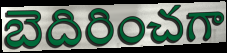
బెదిరించగా